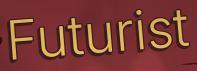
Futurist